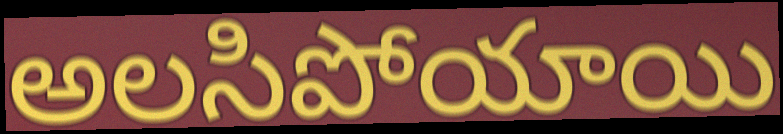
అలసిపోయాయి